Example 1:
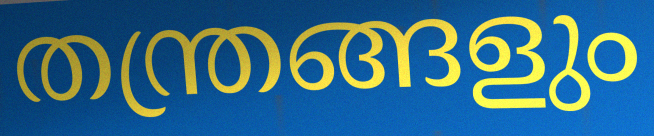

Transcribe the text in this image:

തന്ത്രങ്ങളും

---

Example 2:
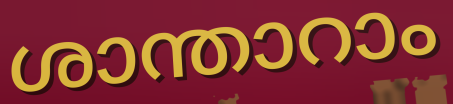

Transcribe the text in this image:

ശാന്താറാം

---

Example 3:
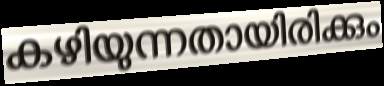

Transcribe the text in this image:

കഴിയുന്നതായിരിക്കും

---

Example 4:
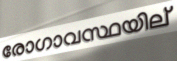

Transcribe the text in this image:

രോഗാവസ്ഥയില്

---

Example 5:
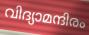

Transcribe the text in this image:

വിദ്യാമന്ദിരം